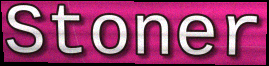
Stoner